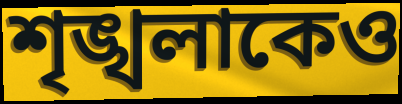
শৃঙ্খলাকেও